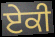
ਏਕੀ